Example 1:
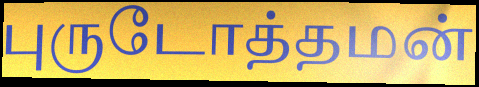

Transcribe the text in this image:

புருடோத்தமன்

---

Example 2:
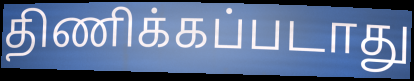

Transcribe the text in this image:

திணிக்கப்படாது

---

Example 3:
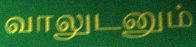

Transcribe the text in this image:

வாலுடனும்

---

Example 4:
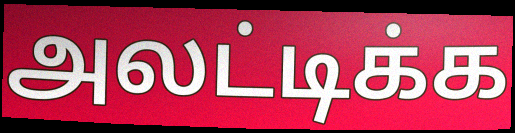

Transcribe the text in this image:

அலட்டிக்க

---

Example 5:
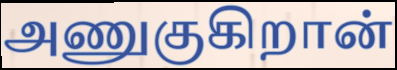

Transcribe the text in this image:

அணுகுகிறான்